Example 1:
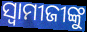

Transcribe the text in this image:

ସ୍ଵାମୀଜୀଙ୍କୁ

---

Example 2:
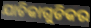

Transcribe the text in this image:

ଯାଚିକାଗୁଡିକର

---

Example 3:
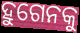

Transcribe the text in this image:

ହୁଗେନକୁ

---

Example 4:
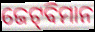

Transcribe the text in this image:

ଜେଟ୍‌ବିମାନ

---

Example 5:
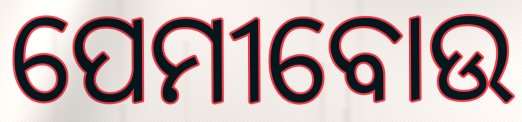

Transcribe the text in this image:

ପେମୀବୋଉ